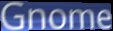
Gnome